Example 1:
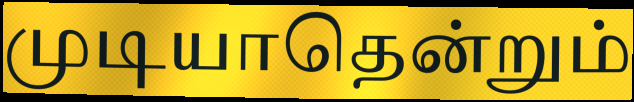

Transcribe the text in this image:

முடியாதென்றும்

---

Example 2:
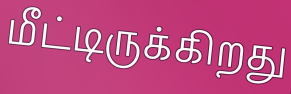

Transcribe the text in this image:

மீட்டிருக்கிறது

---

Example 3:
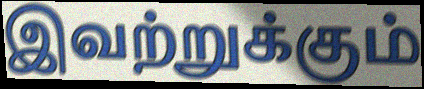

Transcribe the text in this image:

இவற்றுக்கும்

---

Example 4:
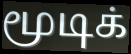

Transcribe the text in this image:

மூடிக்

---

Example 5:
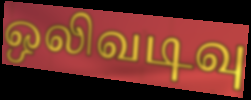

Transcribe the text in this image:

ஒலிவடிவு